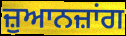
ਜ਼ੁਆਨਜ਼ਾਂਗ